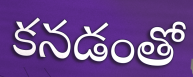
కనడంతో